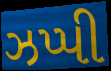
ઝપ્પી